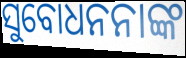
ସୁବୋଧନନାଙ୍କ